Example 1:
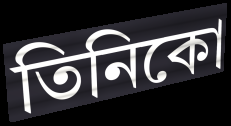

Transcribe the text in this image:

তিনিকো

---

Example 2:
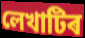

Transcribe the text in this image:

লেখাটিৰ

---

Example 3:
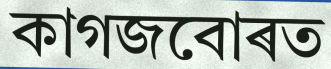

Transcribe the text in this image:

কাগজবোৰত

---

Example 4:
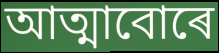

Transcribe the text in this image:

আত্মাবোৰে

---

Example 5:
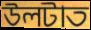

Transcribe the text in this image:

উলটাত